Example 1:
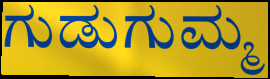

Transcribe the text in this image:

ಗುಡುಗುಮ್ಮ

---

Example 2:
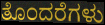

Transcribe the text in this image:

ತೊಂದರೆಗಳು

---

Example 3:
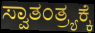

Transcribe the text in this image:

ಸ್ವಾತಂತ್ರ್ಯಕ್ಕೆ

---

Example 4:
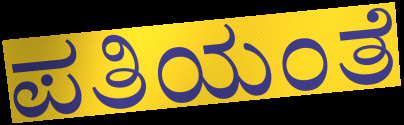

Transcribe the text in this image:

ಪತಿಯಂತೆ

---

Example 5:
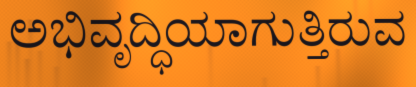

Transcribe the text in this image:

ಅಭಿವೃದ್ಧಿಯಾಗುತ್ತಿರುವ